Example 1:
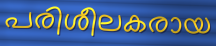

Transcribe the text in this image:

പരിശീലകരായ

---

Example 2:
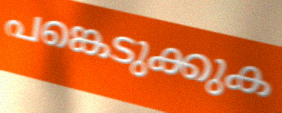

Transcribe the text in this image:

പങ്കെടുക്കുക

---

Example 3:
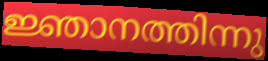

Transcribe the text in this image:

ജ്ഞാനത്തിന്നു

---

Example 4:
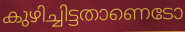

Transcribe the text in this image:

കുഴിച്ചിട്ടതാണെടോ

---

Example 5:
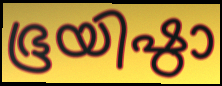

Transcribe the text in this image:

ഭൂയിഷ്ഠാ